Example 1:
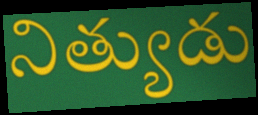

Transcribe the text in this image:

నిత్యుడు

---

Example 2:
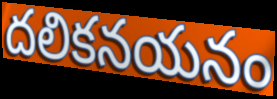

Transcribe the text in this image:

దలికనయనం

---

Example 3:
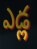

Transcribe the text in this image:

ఎడ్ల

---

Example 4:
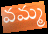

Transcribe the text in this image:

వమ్మ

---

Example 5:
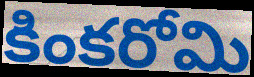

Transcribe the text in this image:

కింకరోమి